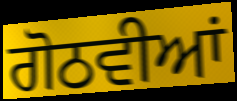
ਗੋਠਵੀਆਂ